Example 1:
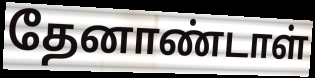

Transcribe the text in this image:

தேனாண்டாள்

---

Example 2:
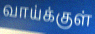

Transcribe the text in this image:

வாய்க்குள்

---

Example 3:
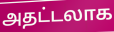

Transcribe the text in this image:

அதட்டலாக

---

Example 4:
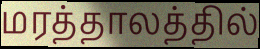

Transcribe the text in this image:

மரத்தாலத்தில்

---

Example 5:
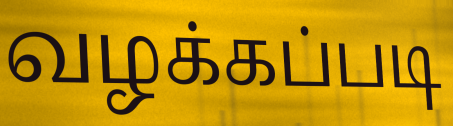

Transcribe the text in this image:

வழக்கப்படி